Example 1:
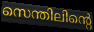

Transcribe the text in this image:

സെന്തിലിന്റെ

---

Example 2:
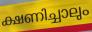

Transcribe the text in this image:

ക്ഷണിച്ചാലും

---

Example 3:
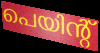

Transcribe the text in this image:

പെയിന്റ്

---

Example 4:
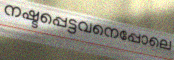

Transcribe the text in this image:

നഷ്ടപ്പെട്ടവനെപ്പോലെ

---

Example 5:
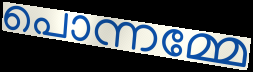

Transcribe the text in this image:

പൊന്നമ്മേ